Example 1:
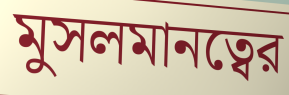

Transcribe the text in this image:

মুসলমানত্বের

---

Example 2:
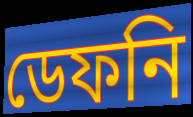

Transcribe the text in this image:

ডেফনি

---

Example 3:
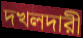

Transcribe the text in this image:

দখলদারী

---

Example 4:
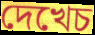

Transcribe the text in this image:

দেখেচ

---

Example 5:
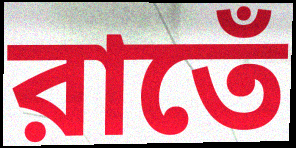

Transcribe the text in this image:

রাতেঁ